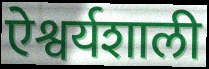
ऐश्वर्यशाली